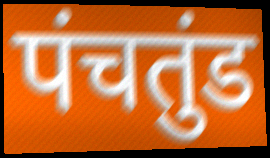
पंचतुंड